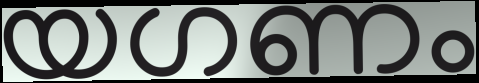
യഗണം